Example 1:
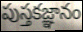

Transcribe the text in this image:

పుస్తకజ్ఞానం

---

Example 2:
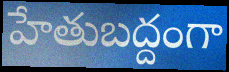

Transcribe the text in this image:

హేతుబద్దంగా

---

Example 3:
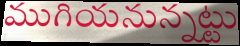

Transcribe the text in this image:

ముగియనున్నట్టు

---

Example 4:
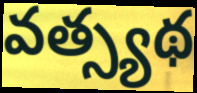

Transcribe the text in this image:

వత్స్యథ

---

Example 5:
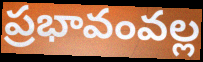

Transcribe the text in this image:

ప్రభావంవల్ల